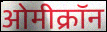
ओमीक्रॉन